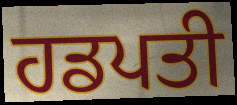
ਹਡਪਤੀ